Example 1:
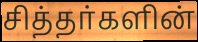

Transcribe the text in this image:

சித்தர்களின்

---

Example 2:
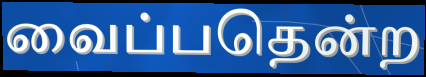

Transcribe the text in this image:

வைப்பதென்ற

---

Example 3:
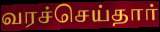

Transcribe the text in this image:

வரச்செய்தார்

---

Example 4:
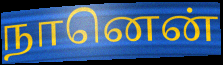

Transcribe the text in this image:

நானென்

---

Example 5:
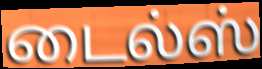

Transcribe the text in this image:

டைல்ஸ்